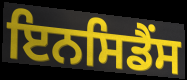
ਇਨਸਿਡੈਂਸ